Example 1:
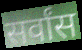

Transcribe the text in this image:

सर्वांस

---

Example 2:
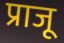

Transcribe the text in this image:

प्राजू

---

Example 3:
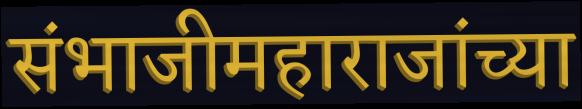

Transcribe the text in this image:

संभाजीमहाराजांच्या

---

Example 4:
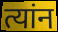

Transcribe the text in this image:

त्यांन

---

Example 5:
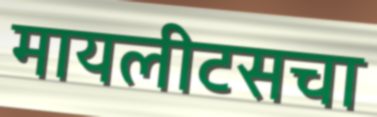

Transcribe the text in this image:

मायलीटसचा